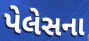
પેલેસના